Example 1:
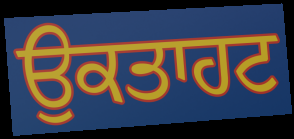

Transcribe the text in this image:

ਉਕਤਾਹਟ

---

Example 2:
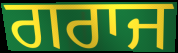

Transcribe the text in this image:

ਗਰਾਜ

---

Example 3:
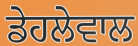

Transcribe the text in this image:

ਡੇਹਲੇਵਾਲ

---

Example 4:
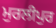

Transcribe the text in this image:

ਮੁਰਲੀਪੁਰ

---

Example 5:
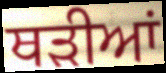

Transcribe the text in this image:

ਥੜੀਆਂ